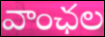
వాంఛల